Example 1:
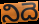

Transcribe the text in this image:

నిదె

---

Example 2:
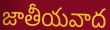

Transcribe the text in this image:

జాతీయవాద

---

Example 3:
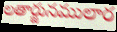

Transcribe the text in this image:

లతార్జునములార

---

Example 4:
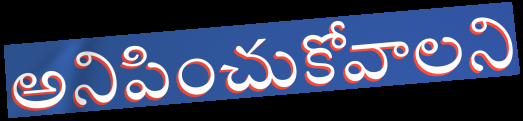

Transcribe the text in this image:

అనిపించుకోవాలని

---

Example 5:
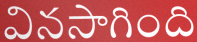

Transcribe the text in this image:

వినసాగింది